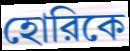
হোরিকে